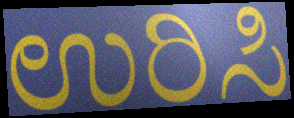
ಉರಿಸಿ